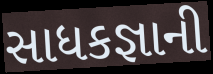
સાધકજ્ઞાની